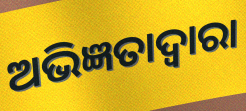
ଅଭିଜ୍ଞତାଦ୍ଵାରା